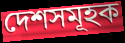
দেশসমূহক